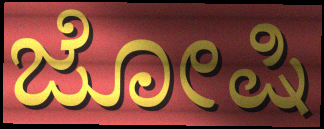
ಜೋಷಿ